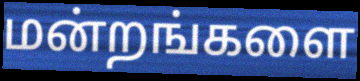
மன்றங்களை